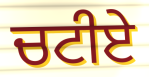
ਚਟੀਏ